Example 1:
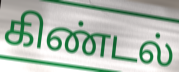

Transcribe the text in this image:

கிண்டல்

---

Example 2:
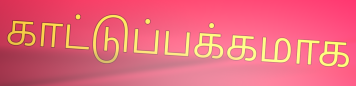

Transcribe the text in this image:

காட்டுப்பக்கமாக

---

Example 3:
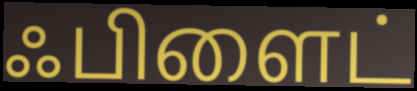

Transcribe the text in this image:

ஃபிளைட்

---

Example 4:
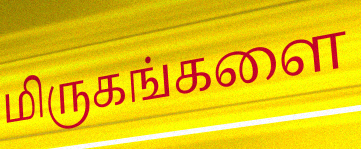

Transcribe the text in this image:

மிருகங்களை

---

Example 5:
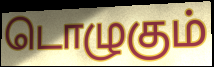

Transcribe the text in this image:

டொழுகும்